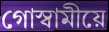
গোস্বামীয়ে